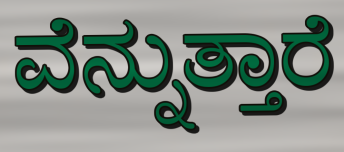
ವೆನ್ನುತ್ತಾರೆ